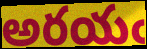
అరయఁ